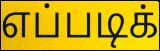
எப்படிக்